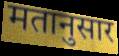
मतानुसार